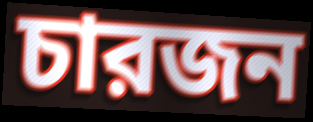
চারজন